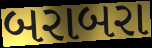
બરાબરા